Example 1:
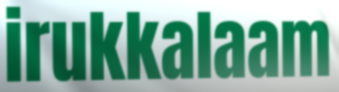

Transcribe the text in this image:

irukkalaam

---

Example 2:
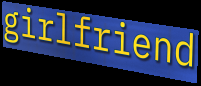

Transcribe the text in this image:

girlfriend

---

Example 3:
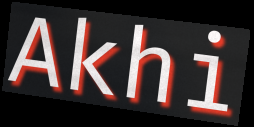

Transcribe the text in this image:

Akhi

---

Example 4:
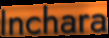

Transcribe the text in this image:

Inchara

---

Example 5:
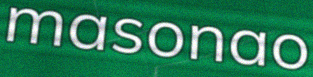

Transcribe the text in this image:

masonao